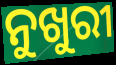
ନୁଖୁରୀ